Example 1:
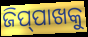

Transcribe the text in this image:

ଜିପ୍‌ପାଖକୁ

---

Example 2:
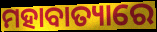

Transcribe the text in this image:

ମହାବାତ୍ୟାରେ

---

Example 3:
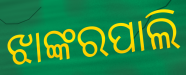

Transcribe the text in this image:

ଝାଙ୍କରପାଲି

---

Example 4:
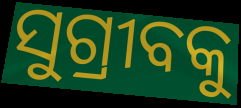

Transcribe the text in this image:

ସୁଗ୍ରୀବକୁ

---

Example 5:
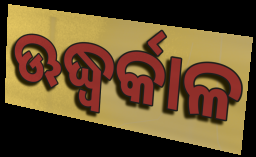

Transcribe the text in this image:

ଊଦ୍ଧ୍ୱର୍କାଳ